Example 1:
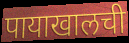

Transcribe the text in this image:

पायाखालची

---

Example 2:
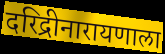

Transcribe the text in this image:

दरिद्रीनारायणाला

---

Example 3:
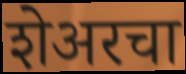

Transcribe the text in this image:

शेअरचा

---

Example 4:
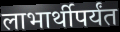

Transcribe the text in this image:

लाभार्थीपर्यंत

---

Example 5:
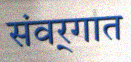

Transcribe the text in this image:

संवर्गात